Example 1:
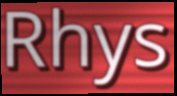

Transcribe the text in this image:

Rhys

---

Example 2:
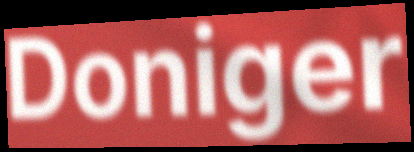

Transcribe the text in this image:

Doniger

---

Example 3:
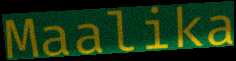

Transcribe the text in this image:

Maalika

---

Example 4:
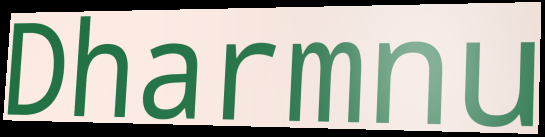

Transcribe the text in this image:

Dharmnu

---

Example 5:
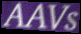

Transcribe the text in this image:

AAVs